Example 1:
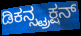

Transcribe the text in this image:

ಡಿಕನ್ಸ್ಟ್ರಕ್ಷನ್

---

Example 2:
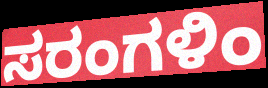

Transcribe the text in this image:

ಸರಂಗಳಿಂ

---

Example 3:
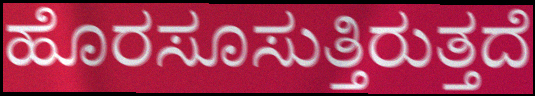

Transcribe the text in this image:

ಹೊರಸೂಸುತ್ತಿರುತ್ತದೆ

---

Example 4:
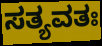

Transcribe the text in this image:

ಸತ್ಯವತಃ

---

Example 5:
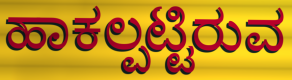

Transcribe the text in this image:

ಹಾಕಲ್ಪಟ್ಟಿರುವ